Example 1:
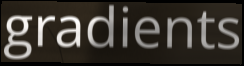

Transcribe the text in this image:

gradients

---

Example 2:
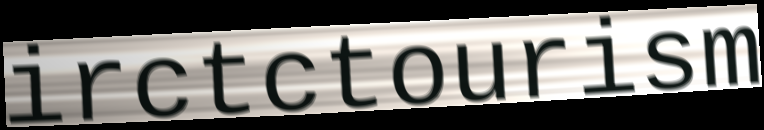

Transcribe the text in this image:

irctctourism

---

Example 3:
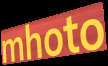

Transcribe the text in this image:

mhoto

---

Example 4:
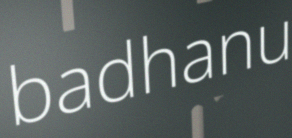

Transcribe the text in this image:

badhanu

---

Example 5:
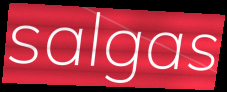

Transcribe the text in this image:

salgas